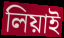
লিয়াই